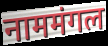
नाममंगल